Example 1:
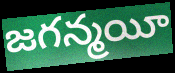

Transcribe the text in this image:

జగన్మయీ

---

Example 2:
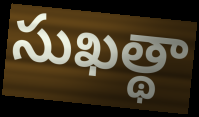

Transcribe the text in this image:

సుఖత్థా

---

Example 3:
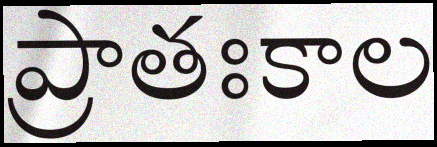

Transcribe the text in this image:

ప్రాతఃకాల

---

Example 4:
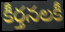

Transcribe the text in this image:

కీర్తనలకీ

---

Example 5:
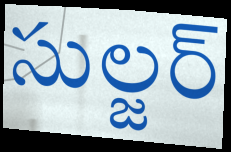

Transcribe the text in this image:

సుల్జర్